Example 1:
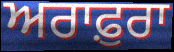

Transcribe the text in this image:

ਅਰਾਫ਼ੁਰਾ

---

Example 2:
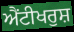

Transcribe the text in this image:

ਐਂਟੀਖਰੁਸ਼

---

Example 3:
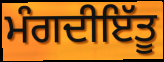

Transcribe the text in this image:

ਮੰਗਦੀਇੱਤੂ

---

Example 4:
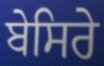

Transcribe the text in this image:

ਬੇਸਿਰੇ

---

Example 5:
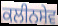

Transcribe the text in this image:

ਕਲੀਨਸੇਵ